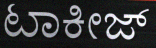
ಟಾಕೀಜ್